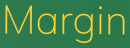
Margin